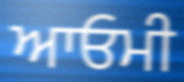
ਆਓਮੀ